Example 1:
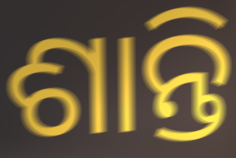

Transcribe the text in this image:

ଶାନ୍ତି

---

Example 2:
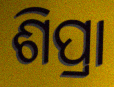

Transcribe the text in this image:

ଶିପ୍ରା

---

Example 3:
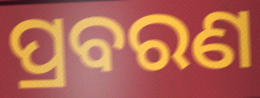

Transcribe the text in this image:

ପ୍ରବରଣ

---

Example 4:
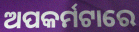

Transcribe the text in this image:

ଅପକର୍ମଟାରେ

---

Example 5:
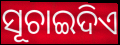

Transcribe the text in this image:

ସୂଚାଇଦିଏ